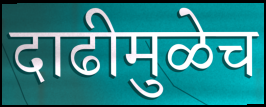
दाढीमुळेच